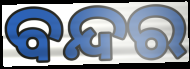
ବନ୍ଦର